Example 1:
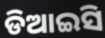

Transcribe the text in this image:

ଡିଆଇସି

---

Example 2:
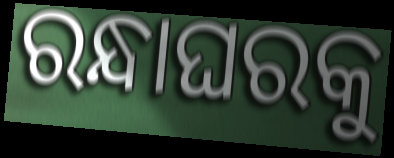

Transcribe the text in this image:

ରନ୍ଧାଘରକୁ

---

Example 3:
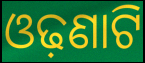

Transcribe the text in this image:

ଓଢ଼ଣାଟି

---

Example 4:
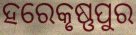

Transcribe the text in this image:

ହରେକୃଷ୍ଣପୁର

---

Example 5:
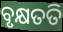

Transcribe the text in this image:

ବୃକ୍ଷତତି